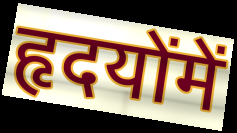
हृदयोंमें